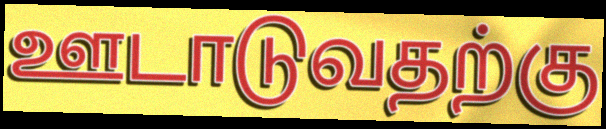
ஊடாடுவதற்கு